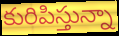
కురిపిస్తున్నా